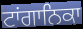
ਟਾਂਗਾਨਿਕਾ